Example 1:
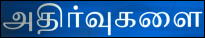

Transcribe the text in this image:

அதிர்வுகளை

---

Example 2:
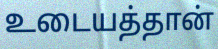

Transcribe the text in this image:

உடையத்தான்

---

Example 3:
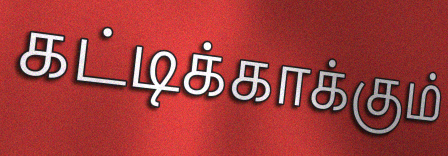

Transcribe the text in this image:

கட்டிக்காக்கும்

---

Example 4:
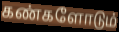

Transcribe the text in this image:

கண்களோடும்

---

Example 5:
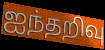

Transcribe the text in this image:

ஐந்தறிவு